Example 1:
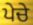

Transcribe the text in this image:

ਪੇਚੇ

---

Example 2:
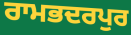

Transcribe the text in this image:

ਰਾਮਭਦਰਪੁਰ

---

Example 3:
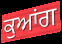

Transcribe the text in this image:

ਕੁਆਂਗ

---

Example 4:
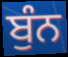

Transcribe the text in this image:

ਬੁੰਨ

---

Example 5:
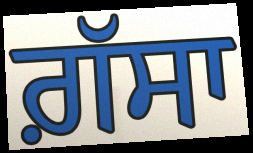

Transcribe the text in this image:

ਗ਼ੱਸਾ